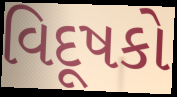
વિદૂષકો